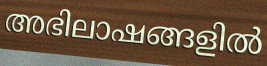
അഭിലാഷങ്ങളിൽ